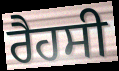
ਰੈਹਸੀ